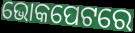
ଭୋକପେଟରେ